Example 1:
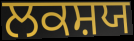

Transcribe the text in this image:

ਲਕਸ਼ਯ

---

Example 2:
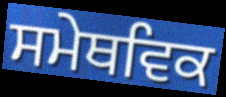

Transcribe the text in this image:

ਸਮੇਥਵਿਕ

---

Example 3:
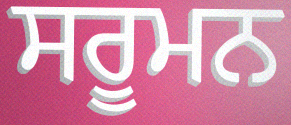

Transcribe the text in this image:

ਸਰੂਮਨ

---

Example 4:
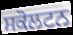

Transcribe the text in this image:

ਸਕੋਲਟਨ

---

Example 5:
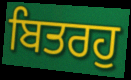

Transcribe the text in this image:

ਬਿਤਰਹੁ